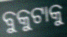
ବୁକୁଟାକୁ